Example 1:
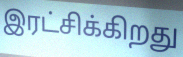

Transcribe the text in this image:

இரட்சிக்கிறது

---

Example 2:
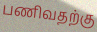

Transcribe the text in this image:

பணிவதற்கு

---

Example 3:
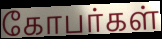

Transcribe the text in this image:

கோபர்கள்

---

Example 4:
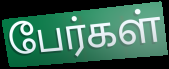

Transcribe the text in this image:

பேர்கள்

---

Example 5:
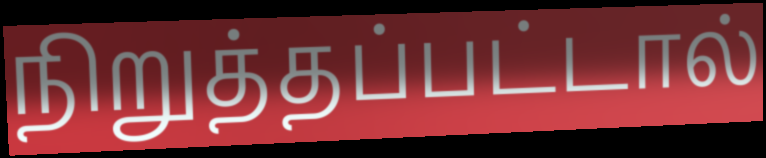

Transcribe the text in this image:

நிறுத்தப்பட்டால்